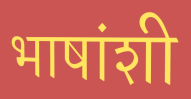
भाषांशी